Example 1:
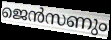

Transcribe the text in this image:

ജെൻസണും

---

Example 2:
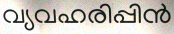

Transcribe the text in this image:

വ്യവഹരിപ്പിൻ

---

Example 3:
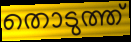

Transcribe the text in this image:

തൊടുത്ത്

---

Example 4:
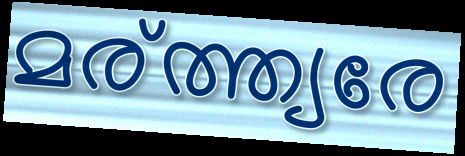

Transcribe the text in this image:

മര്ത്ത്യരേ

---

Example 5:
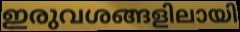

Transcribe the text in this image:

ഇരുവശങ്ങളിലായി